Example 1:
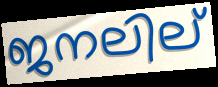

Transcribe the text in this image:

ജനലില്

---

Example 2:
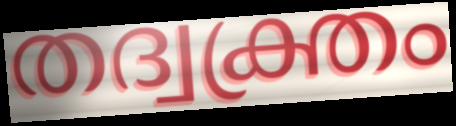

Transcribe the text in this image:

തദ്വക്ത്രം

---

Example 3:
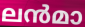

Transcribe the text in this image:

ലൻമാ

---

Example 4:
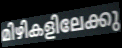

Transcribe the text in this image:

മിഴികളിലേക്കു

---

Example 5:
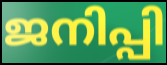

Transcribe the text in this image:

ജനിപ്പി